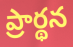
ప్రార్థన